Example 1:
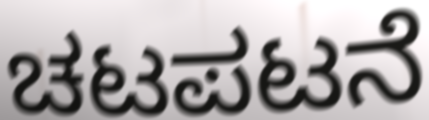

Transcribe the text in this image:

ಚಟಪಟನೆ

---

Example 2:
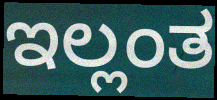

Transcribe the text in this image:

ಇಲ್ಲಂತ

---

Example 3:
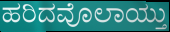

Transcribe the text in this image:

ಹರಿದವೊಲಾಯ್ತು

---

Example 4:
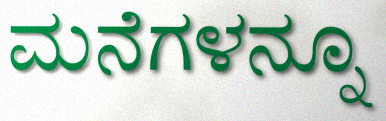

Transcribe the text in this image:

ಮನೆಗಳನ್ನೂ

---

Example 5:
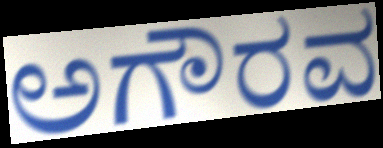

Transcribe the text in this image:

ಅಗೌರವ